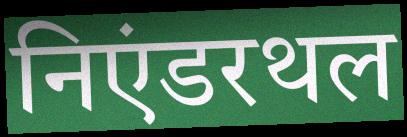
निएंडरथल